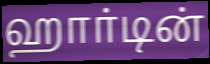
ஹார்டின்